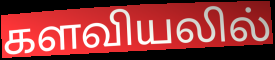
களவியலில்